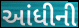
આંધીની